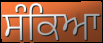
ਸੰਕਿਆ